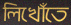
লিখোঁতে